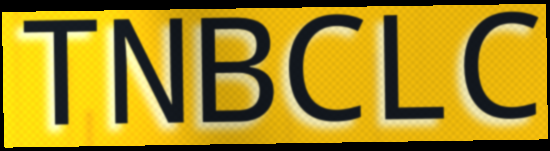
TNBCLC